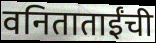
वनिताताईंची